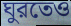
ঘুরতেও